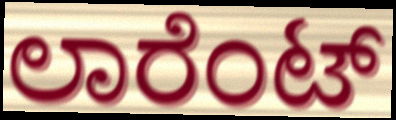
ಲಾರೆಂಟ್